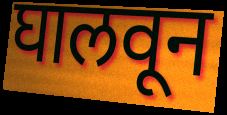
घालवून